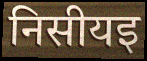
निसीयइ